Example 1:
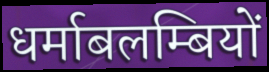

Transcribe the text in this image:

धर्माबलम्बियों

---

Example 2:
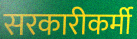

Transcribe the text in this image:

सरकारीकर्मी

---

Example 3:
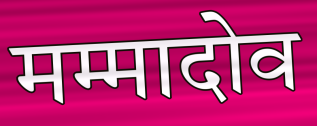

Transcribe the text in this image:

मम्मादोव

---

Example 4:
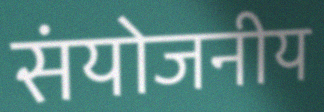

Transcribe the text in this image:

संयोजनीय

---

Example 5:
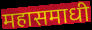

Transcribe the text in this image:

महासमाधी